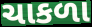
ચાકળા